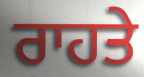
ਰਾਹਤੇ